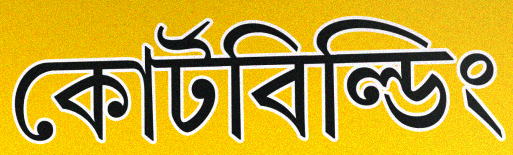
কোর্টবিল্ডিং